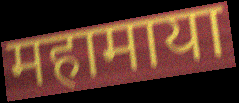
महामाया